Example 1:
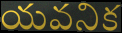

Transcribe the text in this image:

యవనిక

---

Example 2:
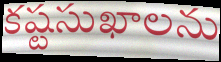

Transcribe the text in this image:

కష్టసుఖాలను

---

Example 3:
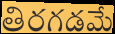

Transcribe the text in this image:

తిరగడమే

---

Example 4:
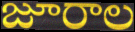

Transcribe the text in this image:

జూరాల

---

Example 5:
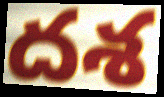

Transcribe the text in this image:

దశ